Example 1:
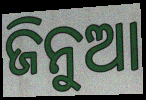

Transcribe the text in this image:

ଜିନୁଆ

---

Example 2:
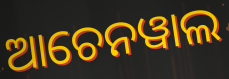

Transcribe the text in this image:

ଆଚେନୱାଲ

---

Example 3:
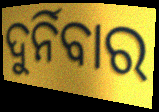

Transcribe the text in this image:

ଦୁର୍ନିବାର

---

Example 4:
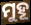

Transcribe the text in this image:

ମୁହୂ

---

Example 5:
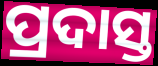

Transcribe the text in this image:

ପ୍ରଦାସ୍ତ